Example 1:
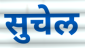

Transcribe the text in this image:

सुचेल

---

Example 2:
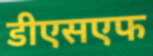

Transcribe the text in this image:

डीएसएफ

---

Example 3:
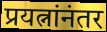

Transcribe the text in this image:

प्रयत्नांनंतर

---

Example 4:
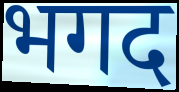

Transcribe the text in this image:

भगद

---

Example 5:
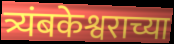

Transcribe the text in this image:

त्र्यंबकेश्वराच्या